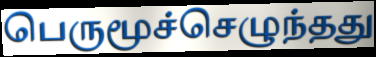
பெருமூச்செழுந்தது